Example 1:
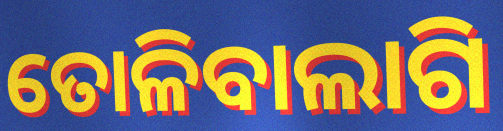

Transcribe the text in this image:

ତୋଳିବାଲାଗି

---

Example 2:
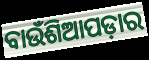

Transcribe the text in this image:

ବାଉଁଶିଆପଡ଼ାର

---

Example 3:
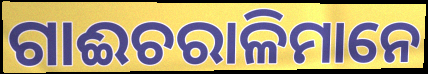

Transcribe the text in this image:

ଗାଈଚରାଳିମାନେ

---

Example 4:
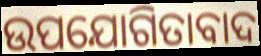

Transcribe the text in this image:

ଉପଯୋଗିତାବାଦ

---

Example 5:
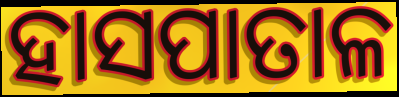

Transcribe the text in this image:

ହାସପାତାଳ